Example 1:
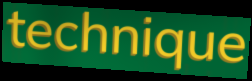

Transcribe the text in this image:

technique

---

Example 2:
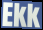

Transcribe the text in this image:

Ekk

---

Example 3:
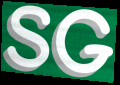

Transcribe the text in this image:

SG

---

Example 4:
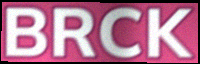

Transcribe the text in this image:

BRCK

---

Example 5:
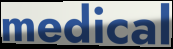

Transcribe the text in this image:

medical